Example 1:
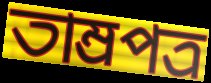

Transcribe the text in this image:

তাম্রপত্র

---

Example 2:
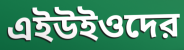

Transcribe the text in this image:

এইউইওদের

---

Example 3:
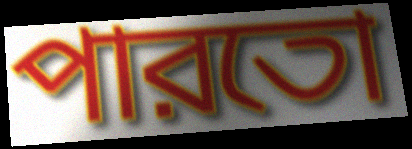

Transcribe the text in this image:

পারতো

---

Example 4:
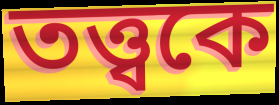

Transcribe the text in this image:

তত্ত্বকে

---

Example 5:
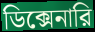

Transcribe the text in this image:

ডিক্সেনারি